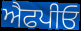
ਐਫਪੀਓ